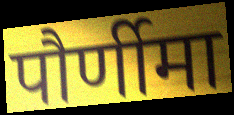
पौर्णीमा